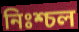
নিঃশ্চল